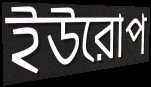
ইউরোপ